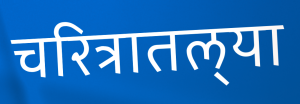
चरित्रातल्या